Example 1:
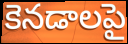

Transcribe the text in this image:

కెనడాలపై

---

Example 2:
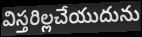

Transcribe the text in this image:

విస్తరిల్లచేయుదును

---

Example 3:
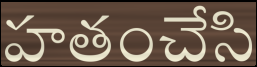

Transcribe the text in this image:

హతంచేసి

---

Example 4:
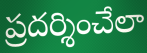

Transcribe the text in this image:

ప్రదర్శించేలా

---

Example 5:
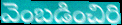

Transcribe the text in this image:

వెంబడించిరి